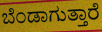
ಬೆಂಡಾಗುತ್ತಾರೆ